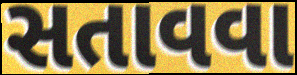
સતાવવા